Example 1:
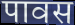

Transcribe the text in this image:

पावस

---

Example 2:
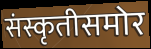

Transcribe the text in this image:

संस्कृतीसमोर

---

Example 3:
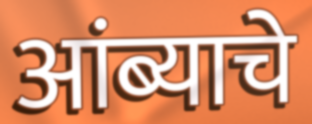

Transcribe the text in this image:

आंब्याचे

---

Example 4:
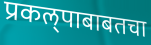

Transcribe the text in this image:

प्रकल्पाबाबतचा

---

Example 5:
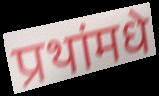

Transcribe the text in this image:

प्रथांमधे